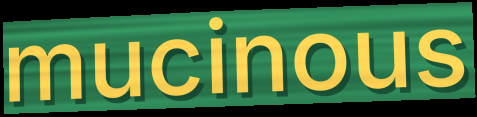
mucinous